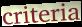
criteria